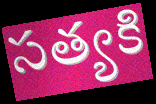
సత్యకి